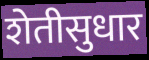
शेतीसुधार